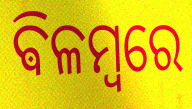
ଵିଳମ୍ବରେ